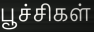
பூச்சிகள்